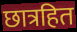
छात्रहित